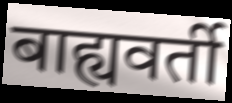
बाह्यवर्ती